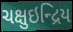
ચક્ષુઇન્દ્રિય